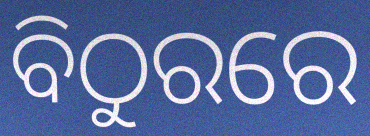
ବିଠୁରରେ